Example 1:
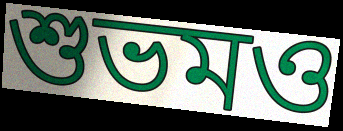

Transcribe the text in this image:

শুভমও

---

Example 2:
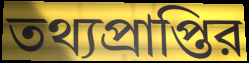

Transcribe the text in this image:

তথ্যপ্রাপ্তির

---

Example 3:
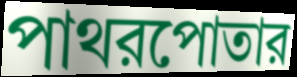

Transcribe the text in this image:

পাথরপোতার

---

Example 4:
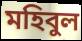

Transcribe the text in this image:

মহিবুল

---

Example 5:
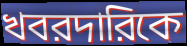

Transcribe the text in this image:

খবরদারিকে